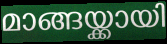
മാങ്ങയ്ക്കായി